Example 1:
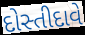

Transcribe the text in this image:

દોસ્તીદાવે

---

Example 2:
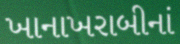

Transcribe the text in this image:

ખાનાખરાબીનાં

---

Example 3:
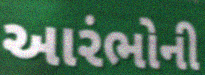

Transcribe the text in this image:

આરંભોની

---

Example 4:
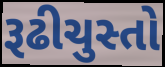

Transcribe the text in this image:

રૂઢીચુસ્તો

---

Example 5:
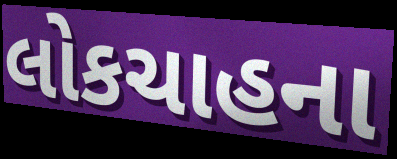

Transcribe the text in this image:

લોકચાહના